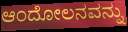
ಆಂದೋಲನವನ್ನು